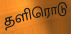
தளிரொடு